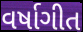
વર્ષાગીત